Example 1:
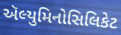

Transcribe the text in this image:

ઍલ્યુમિનોસિલિકેટ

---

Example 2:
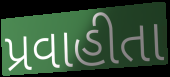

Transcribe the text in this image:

પ્રવાહીતા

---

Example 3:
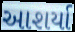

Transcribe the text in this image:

આશર્યા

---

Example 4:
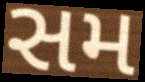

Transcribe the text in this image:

સમ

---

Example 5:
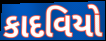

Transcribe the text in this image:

કાદવિયો